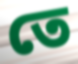
তে